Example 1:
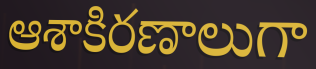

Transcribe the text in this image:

ఆశాకిరణాలుగా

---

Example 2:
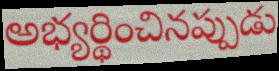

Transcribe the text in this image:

అభ్యర్థించినప్పుడు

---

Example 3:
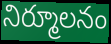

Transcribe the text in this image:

నిర్మూలనం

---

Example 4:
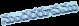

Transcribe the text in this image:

సుందరరూపము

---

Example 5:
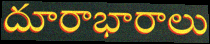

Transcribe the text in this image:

దూరాభారాలు